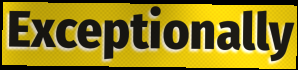
Exceptionally